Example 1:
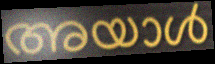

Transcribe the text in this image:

അയാൾ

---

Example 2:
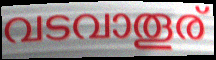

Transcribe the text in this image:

വടവാതൂര്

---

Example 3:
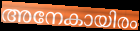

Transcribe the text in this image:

അനേകായിരം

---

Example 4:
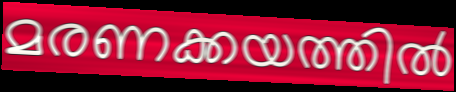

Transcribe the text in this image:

മരണക്കയത്തിൽ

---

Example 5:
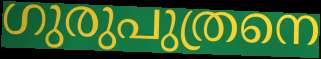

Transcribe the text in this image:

ഗുരുപുത്രനെ